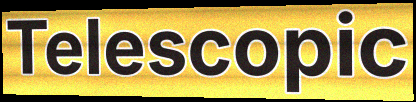
Telescopic